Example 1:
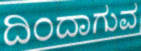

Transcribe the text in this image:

ದಿಂದಾಗುವ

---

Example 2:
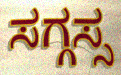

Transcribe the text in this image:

ಸಗ್ಗಸ್ಸ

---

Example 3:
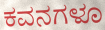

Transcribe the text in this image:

ಕವನಗಳೂ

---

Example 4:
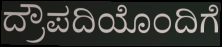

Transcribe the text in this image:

ದ್ರೌಪದಿಯೊಂದಿಗೆ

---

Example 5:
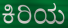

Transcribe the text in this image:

ಕಿರಿಯ